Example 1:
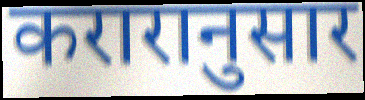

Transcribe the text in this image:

करारानुसार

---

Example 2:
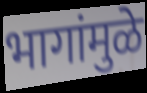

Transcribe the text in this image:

भागांमुळे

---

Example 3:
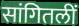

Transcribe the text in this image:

सांगितलीं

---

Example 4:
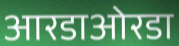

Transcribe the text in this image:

आरडाओरडा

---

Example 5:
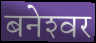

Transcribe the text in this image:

बनेश्वर